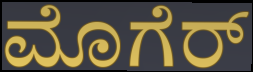
ಮೊಗೆರ್